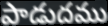
పాడుదము